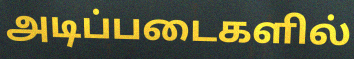
அடிப்படைகளில்